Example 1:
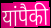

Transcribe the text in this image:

यांपैकी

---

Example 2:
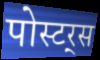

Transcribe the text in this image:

पोस्टर्स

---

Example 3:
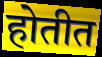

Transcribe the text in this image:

होतीत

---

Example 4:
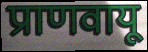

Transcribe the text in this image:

प्राणवायू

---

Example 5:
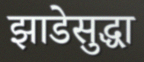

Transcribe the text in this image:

झाडेसुद्धा